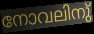
നോവലിനു്